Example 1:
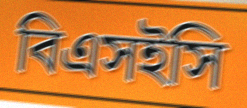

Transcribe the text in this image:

বিএসইসি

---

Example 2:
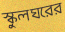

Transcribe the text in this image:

স্কুলঘরের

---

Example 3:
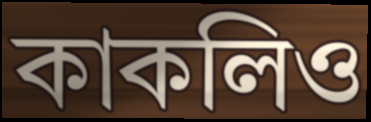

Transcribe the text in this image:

কাকলিও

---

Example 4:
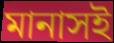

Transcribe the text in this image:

মানাসই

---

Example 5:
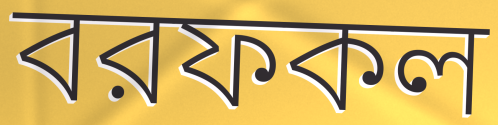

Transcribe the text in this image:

বরফকল